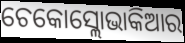
ଚେକୋସ୍ଲୋଭାକିଆର